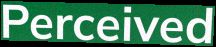
Perceived